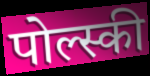
पोल्स्की